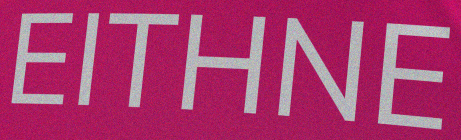
EITHNE